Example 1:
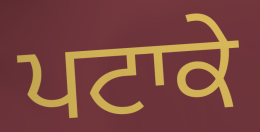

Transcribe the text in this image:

ਪਟਾਕੇ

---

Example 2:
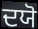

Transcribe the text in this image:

ਦਯੋ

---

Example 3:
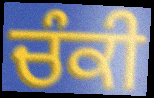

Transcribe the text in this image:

ਚੰਕੀ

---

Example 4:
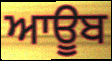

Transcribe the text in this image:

ਆਊਬ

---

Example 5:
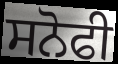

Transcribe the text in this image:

ਸਨੋਫੀ